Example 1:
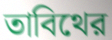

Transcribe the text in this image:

তাবিথের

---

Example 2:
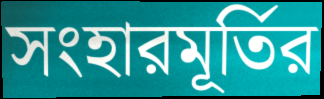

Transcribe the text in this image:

সংহারমূর্তির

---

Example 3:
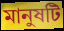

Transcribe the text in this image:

মানুষটি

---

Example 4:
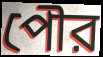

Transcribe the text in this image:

পৌর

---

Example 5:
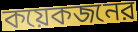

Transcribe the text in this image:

কয়েকজনের